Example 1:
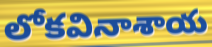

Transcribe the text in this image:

లోకవినాశాయ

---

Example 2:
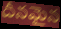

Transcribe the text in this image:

దీనమైన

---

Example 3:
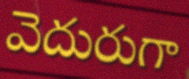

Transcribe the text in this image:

వెదురుగా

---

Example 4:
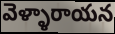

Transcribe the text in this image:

వెళ్ళారాయన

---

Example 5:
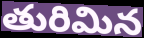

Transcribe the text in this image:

తురిమిన